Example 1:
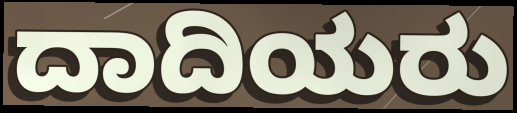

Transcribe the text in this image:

ದಾದಿಯರು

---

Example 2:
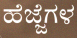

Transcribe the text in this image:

ಹೆಜ್ಜೆಗಳ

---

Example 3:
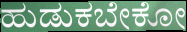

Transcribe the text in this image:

ಹುಡುಕಬೇಕೋ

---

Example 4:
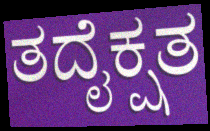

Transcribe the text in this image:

ತದೈಕ್ಷತ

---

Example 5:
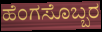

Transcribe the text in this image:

ಹೆಂಗಸೊಬ್ಬರ